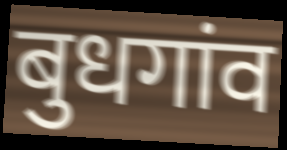
बुधगांव